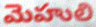
మెహులి